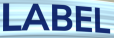
LABEL